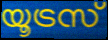
യൂട്രസ്